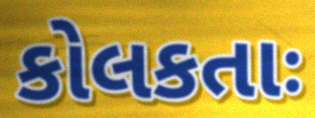
કોલકતાઃ